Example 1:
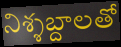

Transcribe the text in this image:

నిశ్శబ్దాలతో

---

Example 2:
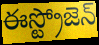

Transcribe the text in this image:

ఈస్ట్రోజెన్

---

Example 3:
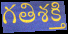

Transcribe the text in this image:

గతిశక్తి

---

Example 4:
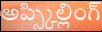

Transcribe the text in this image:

అప్స్కిల్లింగ్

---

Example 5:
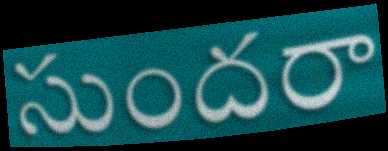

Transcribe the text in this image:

సుందరా